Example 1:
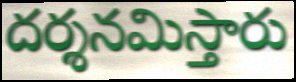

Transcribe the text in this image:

దర్శనమిస్తారు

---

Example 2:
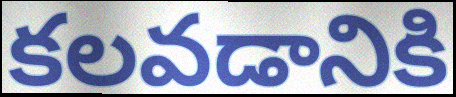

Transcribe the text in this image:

కలవడానికి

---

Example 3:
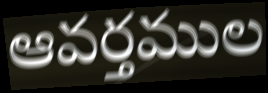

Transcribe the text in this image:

ఆవర్తముల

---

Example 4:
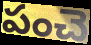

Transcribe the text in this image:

పంచె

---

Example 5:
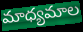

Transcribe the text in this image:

మాధ్యమాల